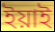
ইয়াই